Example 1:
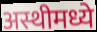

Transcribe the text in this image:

अस्थीमध्ये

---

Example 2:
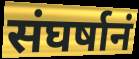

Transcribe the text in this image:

संघर्षानं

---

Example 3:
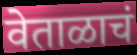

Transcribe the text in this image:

वेताळाचं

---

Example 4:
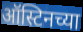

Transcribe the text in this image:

ऑस्टिनच्या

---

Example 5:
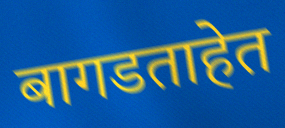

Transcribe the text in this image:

बागडताहेत